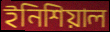
ইনিশিয়াল